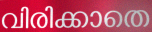
വിരിക്കാതെ